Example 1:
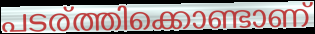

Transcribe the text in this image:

പടര്ത്തിക്കൊണ്ടാണ്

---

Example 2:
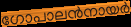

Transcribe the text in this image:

ഗോപാലൻനായർ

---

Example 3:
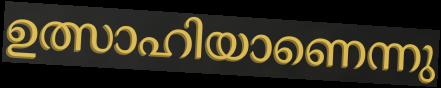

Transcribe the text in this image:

ഉത്സാഹിയാണെന്നു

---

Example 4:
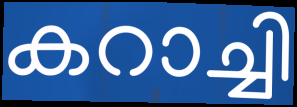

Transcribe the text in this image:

കറാച്ചി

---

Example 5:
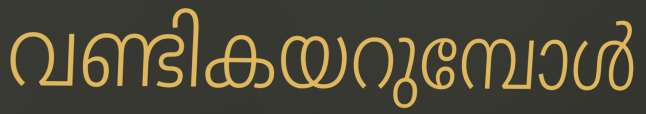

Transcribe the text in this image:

വണ്ടികയറുമ്പോൾ